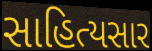
સાહિત્યસાર